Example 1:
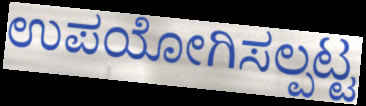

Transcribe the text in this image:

ಉಪಯೋಗಿಸಲ್ಪಟ್ಟ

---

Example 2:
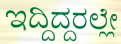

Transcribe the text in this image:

ಇದ್ದಿದ್ದರಲ್ಲೇ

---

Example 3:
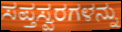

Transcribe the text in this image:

ಸಪ್ತಸ್ವರಗಳನ್ನು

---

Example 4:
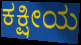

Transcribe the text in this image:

ಕಕ್ಷೀಯ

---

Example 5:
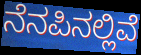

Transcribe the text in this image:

ನೆನಪಿನಲ್ಲಿವೆ